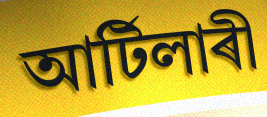
আৰ্টিলাৰী